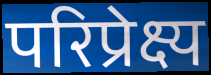
परिप्रेक्ष्य